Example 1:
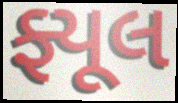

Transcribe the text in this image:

ફ્યૂલ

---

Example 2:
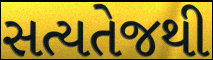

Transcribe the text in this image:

સત્યતેજથી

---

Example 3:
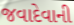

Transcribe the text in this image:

જવાદેવાની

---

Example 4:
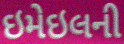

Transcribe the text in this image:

ઇમેઇલની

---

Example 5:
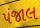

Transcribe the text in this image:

પંજાલ